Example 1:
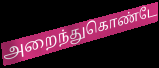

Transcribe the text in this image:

அறைந்துகொண்டே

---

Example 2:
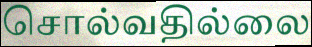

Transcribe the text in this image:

சொல்வதில்லை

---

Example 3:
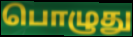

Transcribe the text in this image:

பொழுது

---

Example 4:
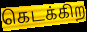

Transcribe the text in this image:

கெடக்கிற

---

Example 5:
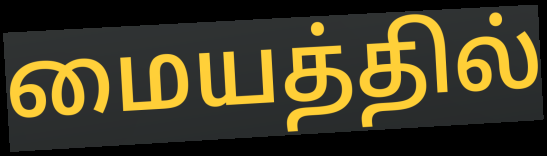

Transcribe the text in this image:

மையத்தில்